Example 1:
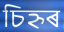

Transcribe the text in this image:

চিহ্নৰ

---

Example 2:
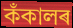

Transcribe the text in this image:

কঁকালৰ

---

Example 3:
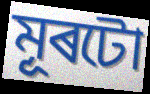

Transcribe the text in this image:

মূৰটো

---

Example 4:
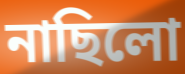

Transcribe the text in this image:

নাছিলো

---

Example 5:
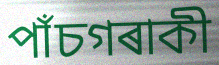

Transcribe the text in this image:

পাঁচগৰাকী